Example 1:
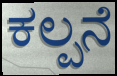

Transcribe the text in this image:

ಕಲ್ಪನೆ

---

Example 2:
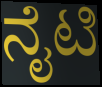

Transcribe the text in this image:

ನೈಟಿ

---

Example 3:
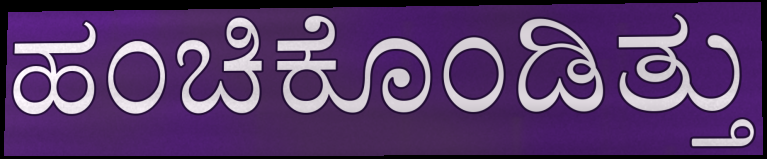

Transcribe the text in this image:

ಹಂಚಿಕೊಂಡಿತ್ತು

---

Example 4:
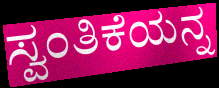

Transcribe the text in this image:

ಸ್ವಂತಿಕೆಯನ್ನ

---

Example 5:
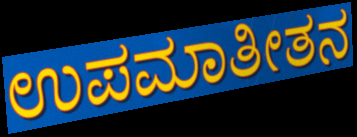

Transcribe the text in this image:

ಉಪಮಾತೀತನ